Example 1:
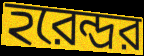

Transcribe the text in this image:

হরেন্দ্রর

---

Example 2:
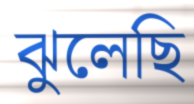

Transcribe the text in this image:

ঝুলেছি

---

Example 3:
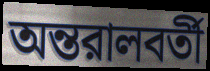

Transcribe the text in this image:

অন্তরালবর্তী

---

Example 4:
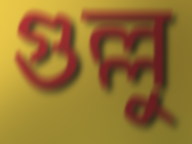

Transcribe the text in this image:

গুল্লু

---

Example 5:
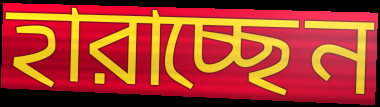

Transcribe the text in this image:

হারাচ্ছেন